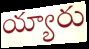
య్యారు